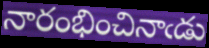
నారంభించినాఁడు